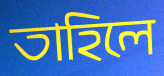
তাহিলে